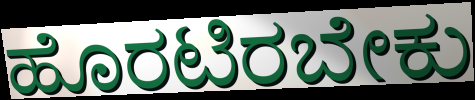
ಹೊರಟಿರಬೇಕು